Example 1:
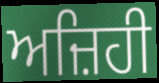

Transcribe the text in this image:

ਅਜ਼ਿਹੀ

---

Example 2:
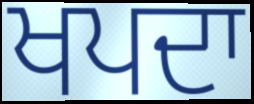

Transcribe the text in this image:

ਖਪਦਾ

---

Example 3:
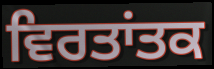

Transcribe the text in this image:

ਵਿਰਤਾਂਤਕ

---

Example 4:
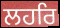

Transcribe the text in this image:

ਲਹਰਿ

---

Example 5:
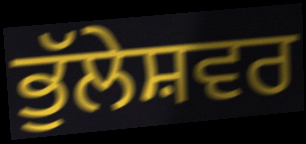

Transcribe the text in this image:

ਭੁੱਲੇਸ਼ਵਰ